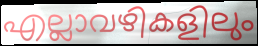
എല്ലാവഴികളിലും